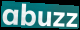
abuzz